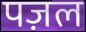
पज़ल